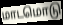
மாடமொடு